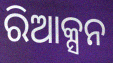
ରିଆକ୍ସନ